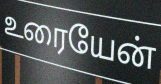
உரையேன்